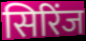
सिरिंज